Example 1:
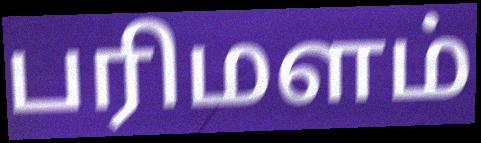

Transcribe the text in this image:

பரிமளம்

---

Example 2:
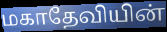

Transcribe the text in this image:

மகாதேவியின்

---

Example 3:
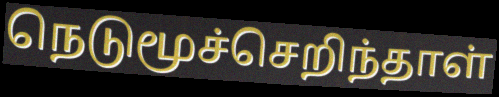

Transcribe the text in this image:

நெடுமூச்செறிந்தாள்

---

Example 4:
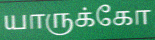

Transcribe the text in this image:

யாருக்கோ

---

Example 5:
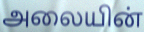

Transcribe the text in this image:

அலையின்